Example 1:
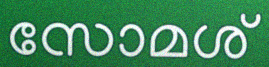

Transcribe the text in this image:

സോമശ്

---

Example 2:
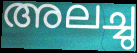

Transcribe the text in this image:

അലച്ചു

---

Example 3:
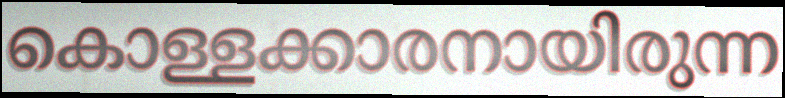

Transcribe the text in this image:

കൊള്ളക്കാരനായിരുന്ന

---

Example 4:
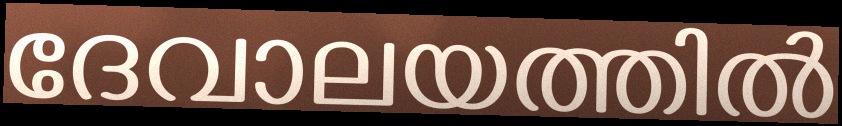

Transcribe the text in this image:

ദേവാലയത്തിൽ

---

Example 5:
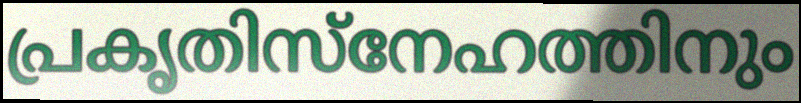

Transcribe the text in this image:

പ്രകൃതിസ്നേഹത്തിനും